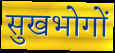
सुखभोगों